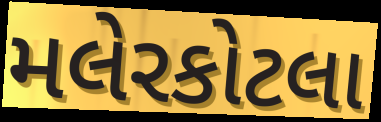
મલેરકોટલા